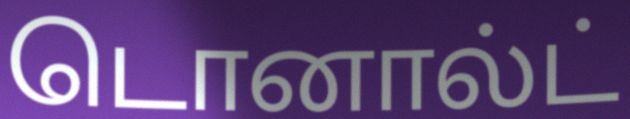
டொனால்ட்